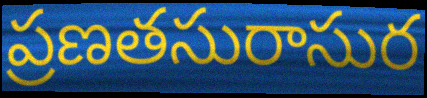
ప్రణతసురాసుర